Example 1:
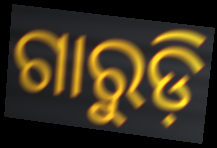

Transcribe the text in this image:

ଗାରୁଡ଼ି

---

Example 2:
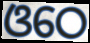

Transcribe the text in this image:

ଓଠେ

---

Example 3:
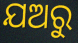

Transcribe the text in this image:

ଯଅରୁ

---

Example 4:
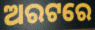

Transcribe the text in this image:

ଅରଟରେ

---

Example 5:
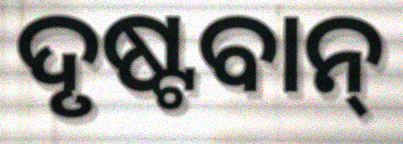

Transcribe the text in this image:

ଦୃଷ୍ଟବାନ୍